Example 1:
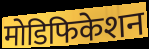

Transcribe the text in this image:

मोडिफिकेशन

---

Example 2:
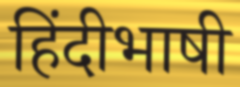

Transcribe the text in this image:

हिंदीभाषी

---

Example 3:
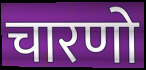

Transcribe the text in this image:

चारणो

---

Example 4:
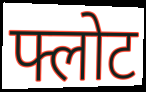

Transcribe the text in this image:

फ्लोट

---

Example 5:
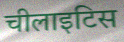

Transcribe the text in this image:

चीलाइटिस